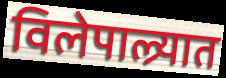
विलेपाल्र्यात